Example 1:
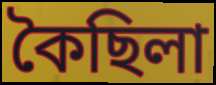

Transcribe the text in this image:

কৈছিলা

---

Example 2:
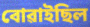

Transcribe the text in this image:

বোৱাইছিল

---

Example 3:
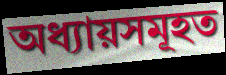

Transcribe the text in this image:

অধ্যায়সমূহত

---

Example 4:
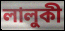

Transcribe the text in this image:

লালুকী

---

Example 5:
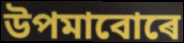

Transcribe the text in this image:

উপমাবোৰে